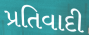
પ્રતિવાદી